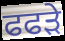
ਫਫੜੇ